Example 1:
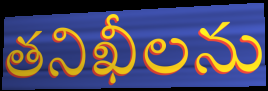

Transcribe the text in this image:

తనిఖీలను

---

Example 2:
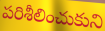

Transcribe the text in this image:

పరిశీలించుకుని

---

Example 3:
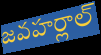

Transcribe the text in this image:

జవహర్లాల్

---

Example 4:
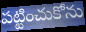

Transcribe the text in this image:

పట్టించుకోను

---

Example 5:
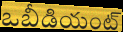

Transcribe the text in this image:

ఒబీడియంట్